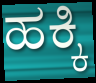
ಹಕ್ಕಿ